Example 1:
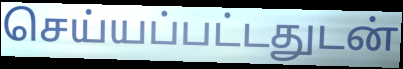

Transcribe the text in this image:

செய்யப்பட்டதுடன்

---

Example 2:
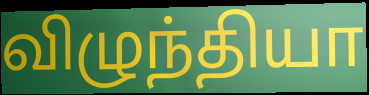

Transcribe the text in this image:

விழுந்தியா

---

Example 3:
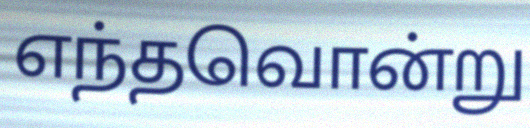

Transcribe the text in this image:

எந்தவொன்று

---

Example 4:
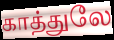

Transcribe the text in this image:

காத்துலே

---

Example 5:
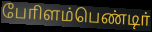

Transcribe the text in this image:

பேரிளம்பெண்டிர்